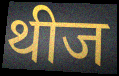
थीज